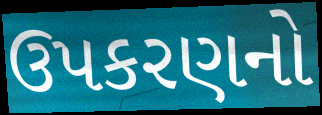
ઉપકરણનો